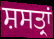
ਸ਼ਸਤ੍ਰਾਂ